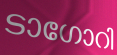
ടാഗോറി